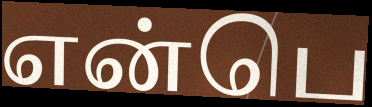
என்பெ